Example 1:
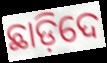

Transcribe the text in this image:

ଛାଡ଼ିଦେ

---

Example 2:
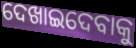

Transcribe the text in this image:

ଦେଖାଇଦେବାକୁ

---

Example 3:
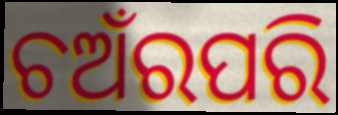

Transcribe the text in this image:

ଚଅଁରପରି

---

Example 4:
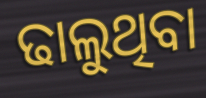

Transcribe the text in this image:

ଢାଲୁଥିବା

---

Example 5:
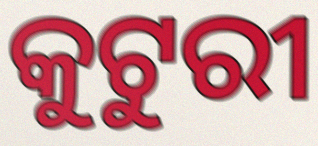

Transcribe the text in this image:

କୁଟୁରୀ